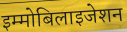
इम्मोबिलाइजेशन